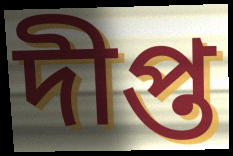
দীপ্ত